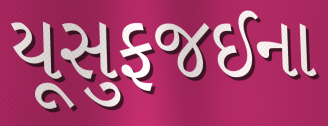
યૂસુફજઈના